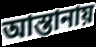
আস্তানায়